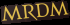
MRDM